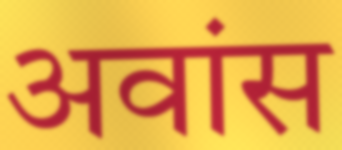
अवांस